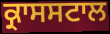
ਕ੍ਰਾਸਸਟਾਲ